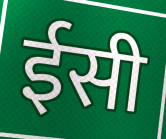
ईसी